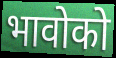
भावोको